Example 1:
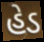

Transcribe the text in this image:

હેડ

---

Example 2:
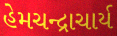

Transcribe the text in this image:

હેમચન્દ્રાચાર્ય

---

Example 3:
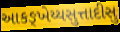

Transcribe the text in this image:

આકઙ્ખેય્યસુત્તાદીસુ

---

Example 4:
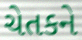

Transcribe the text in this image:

ચેતકને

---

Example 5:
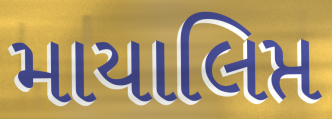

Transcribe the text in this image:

માયાલિપ્ત